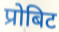
प्रोबिट